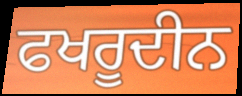
ਫਖਰੂਦੀਨ